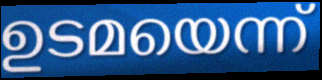
ഉടമയെന്ന്